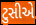
ટુસીએ